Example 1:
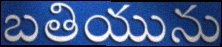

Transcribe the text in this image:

బతియును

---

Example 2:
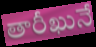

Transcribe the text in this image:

తారీఖునే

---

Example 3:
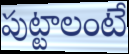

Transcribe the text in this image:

పుట్టాలంటే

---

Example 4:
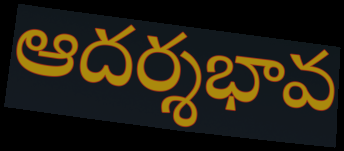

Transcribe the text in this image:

ఆదర్శభావ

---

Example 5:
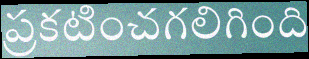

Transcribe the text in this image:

ప్రకటించగలిగింది